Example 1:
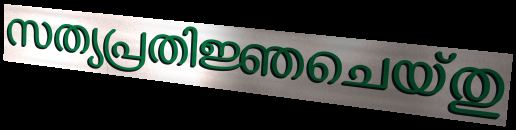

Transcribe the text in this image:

സത്യപ്രതിജ്ഞചെയ്തു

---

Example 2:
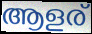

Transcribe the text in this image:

ആളര്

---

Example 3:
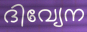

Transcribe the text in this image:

ദിവ്യേന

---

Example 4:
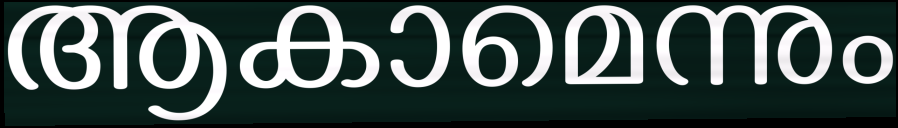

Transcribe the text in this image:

ആകാമെന്നും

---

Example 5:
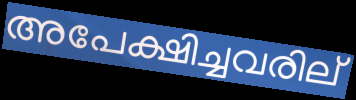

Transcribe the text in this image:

അപേക്ഷിച്ചവരില്